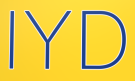
IYD